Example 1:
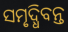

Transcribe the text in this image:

ସମୃଦ୍ଧିବନ୍ତ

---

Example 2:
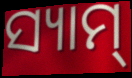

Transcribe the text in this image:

ସ୍ୟାମ୍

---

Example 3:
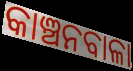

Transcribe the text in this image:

କାଞ୍ଚନବାଳା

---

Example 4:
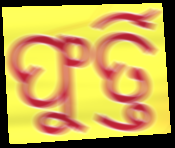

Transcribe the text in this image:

ଫୁର୍ତ୍ତି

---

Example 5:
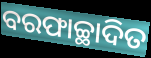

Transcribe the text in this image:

ବରଫାଚ୍ଛାଦିତ